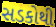
સડકોથી